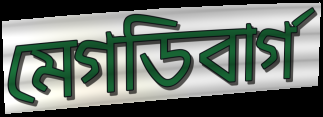
মেগডিবার্গ